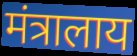
मंत्रालाय